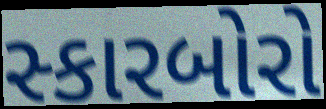
સ્કારબોરો